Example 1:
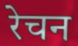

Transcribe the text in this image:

रेचन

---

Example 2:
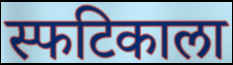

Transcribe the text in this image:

स्फटिकाला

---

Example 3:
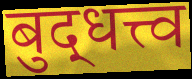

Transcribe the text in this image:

बुद्धत्त्व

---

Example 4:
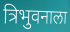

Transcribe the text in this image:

त्रिभुवनाला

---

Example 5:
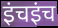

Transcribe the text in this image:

इंचइंच